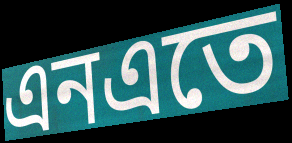
এনএতে